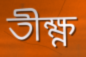
তীক্ষ্ণ